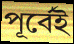
পূর্বেই